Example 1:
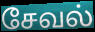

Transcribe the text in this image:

சேவல்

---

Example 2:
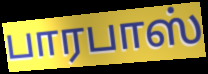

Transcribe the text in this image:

பாரபாஸ்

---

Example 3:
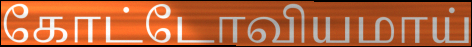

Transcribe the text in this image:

கோட்டோவியமாய்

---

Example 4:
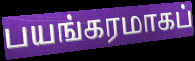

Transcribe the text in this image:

பயங்கரமாகப்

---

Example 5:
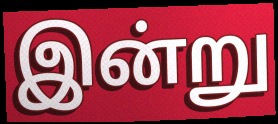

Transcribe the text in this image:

இன்று